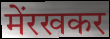
मेंरखकर